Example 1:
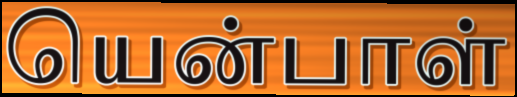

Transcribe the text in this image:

யென்பாள்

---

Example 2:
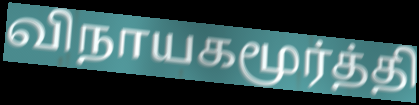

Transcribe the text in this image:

விநாயகமூர்த்தி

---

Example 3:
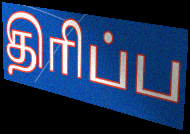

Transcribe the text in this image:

திரிப்ப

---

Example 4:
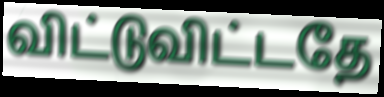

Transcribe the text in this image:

விட்டுவிட்டதே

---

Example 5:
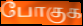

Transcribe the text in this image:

போகுக